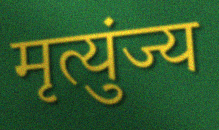
मृत्युंज्य